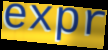
expr